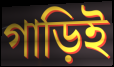
গাড়িই